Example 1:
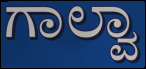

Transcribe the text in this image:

ಗಾಲ್ವಾ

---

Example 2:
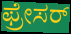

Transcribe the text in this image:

ಫ್ರೇಸರ್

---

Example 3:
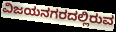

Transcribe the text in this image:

ವಿಜಯನಗರದಲ್ಲಿರುವ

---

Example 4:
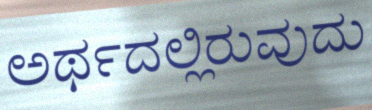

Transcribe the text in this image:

ಅರ್ಥದಲ್ಲಿರುವುದು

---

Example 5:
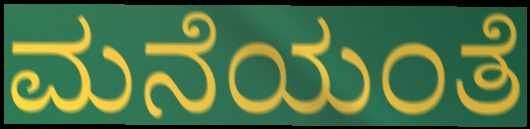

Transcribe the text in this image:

ಮನೆಯಂತೆ